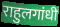
राहुलगांधी